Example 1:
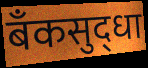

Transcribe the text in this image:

बँकसुद्धा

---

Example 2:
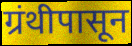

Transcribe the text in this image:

ग्रंथीपासून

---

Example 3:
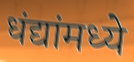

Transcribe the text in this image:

धंद्यांमध्ये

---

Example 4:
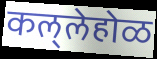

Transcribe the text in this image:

कल्लेहोळ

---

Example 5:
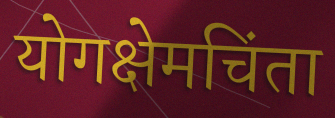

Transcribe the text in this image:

योगक्षेमचिंता